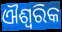
ଐଶ୍ବରିକ